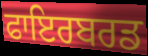
ਫਾਇਰਬਰਡ